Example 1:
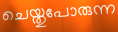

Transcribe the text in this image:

ചെയ്തുപോരുന്ന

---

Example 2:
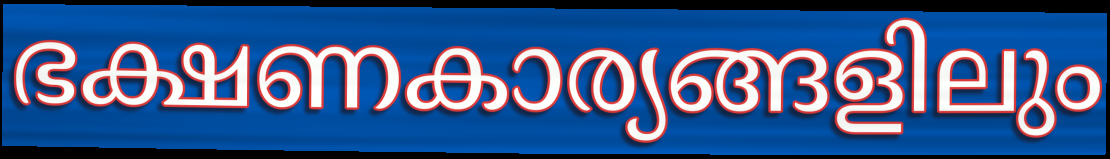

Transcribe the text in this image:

ഭക്ഷണകാര്യങ്ങളിലും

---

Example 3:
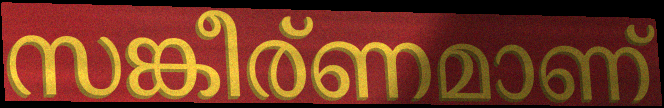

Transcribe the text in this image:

സങ്കീര്ണമാണ്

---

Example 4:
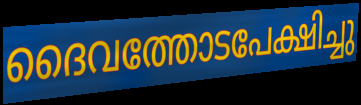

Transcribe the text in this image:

ദൈവത്തോടപേക്ഷിച്ചു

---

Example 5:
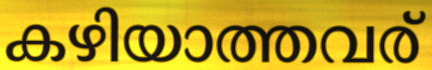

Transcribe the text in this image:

കഴിയാത്തവര്